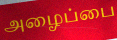
அழைப்பை